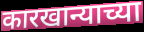
कारखान्याच्या